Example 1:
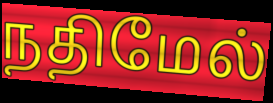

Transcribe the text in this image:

நதிமேல்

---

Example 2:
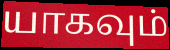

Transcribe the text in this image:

யாகவும்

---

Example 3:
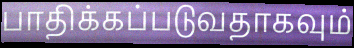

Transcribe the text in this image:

பாதிக்கப்படுவதாகவும்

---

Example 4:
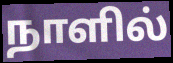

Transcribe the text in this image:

நாளில்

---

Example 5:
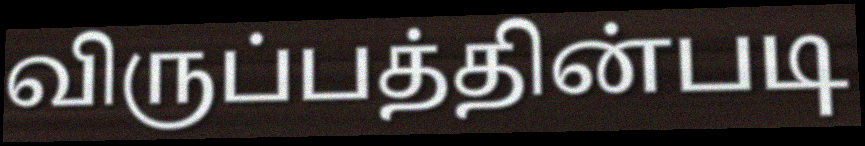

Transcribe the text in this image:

விருப்பத்தின்படி